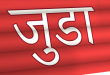
जुडा